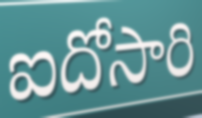
ఐదోసారి